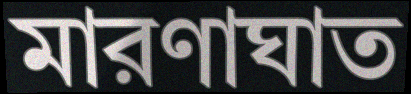
মারণাঘাত